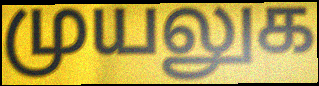
முயலுக